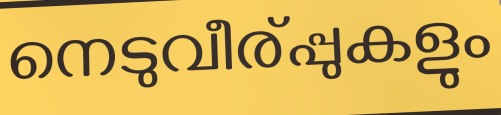
നെടുവീര്പ്പുകളും